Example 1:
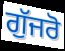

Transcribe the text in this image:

ਗੁੱਜਰੋ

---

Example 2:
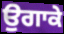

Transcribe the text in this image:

ਉਗਾਕੇ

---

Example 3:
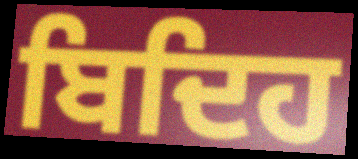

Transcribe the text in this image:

ਬਿਦਿਹ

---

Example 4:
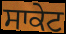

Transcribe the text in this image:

ਸਾਕੇਟ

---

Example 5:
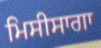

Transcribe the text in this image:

ਮਿਸੀਸਾਗਾ